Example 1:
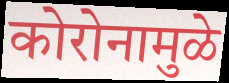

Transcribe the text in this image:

कोरोनामुळे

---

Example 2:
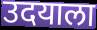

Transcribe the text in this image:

उदयाला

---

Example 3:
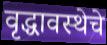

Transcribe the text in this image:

वृद्धावस्थेचे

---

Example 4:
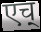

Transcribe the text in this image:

एच्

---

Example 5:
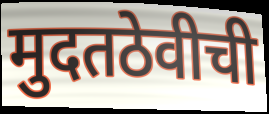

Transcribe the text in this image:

मुदतठेवीची